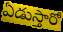
ఏడుస్తారో